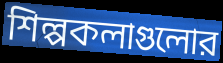
শিল্পকলাগুলোর